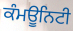
ਕੰਮਊਨਿਟੀ